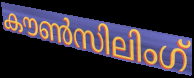
കൗൺസിലിംഗ്